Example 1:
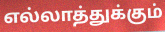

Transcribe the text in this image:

எல்லாத்துக்கும்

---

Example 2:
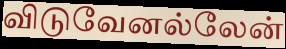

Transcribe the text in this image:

விடுவேனல்லேன்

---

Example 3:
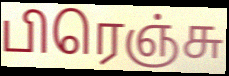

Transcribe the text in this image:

பிரெஞ்சு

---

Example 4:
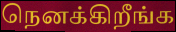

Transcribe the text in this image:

நெனக்கிறீங்க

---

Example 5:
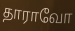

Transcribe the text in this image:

தாராவோ